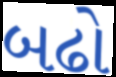
બઢો